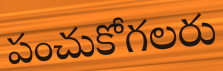
పంచుకోగలరు